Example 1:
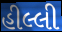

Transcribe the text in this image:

હીલ્લી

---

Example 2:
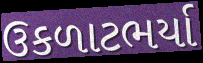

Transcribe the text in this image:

ઉકળાટભર્યા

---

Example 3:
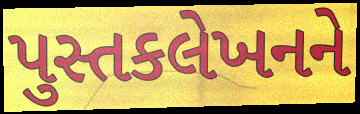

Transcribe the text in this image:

પુસ્તકલેખનને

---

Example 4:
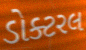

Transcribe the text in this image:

ડોક્ટરલ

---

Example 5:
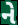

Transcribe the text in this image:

ને